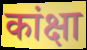
कांक्षा